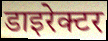
डाइरेक्टर